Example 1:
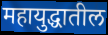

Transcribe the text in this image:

महायुद्धातील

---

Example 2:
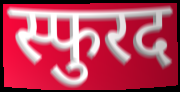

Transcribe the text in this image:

स्फुरद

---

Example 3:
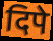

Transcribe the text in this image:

दिपे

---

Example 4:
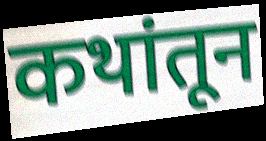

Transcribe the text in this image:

कथांतून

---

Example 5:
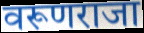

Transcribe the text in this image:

वरूणराजा